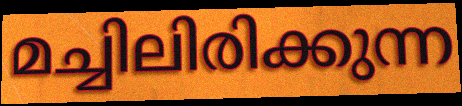
മച്ചിലിരിക്കുന്ന